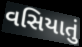
વસિયાતું